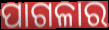
ପାଗଳାର